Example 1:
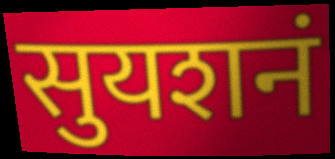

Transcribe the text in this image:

सुयशनं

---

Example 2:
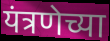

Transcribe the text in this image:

यंत्रणेच्या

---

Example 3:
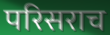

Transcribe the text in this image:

परिसराच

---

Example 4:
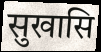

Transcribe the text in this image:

सुखासि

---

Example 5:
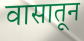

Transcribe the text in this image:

वासातून